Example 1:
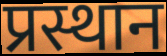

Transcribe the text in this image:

प्रस्थान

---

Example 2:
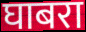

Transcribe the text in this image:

घाबरा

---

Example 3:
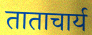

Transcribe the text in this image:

ताताचार्य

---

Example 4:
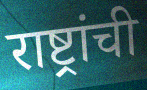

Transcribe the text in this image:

राष्ट्रांची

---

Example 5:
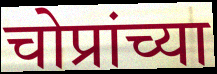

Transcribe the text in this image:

चोप्रांच्या